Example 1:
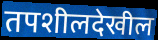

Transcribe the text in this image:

तपशीलदेखील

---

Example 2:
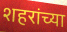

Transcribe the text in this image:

शहरांच्या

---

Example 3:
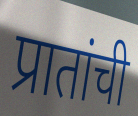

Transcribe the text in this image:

प्रातांची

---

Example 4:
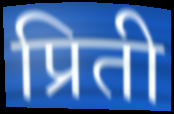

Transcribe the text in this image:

प्रिती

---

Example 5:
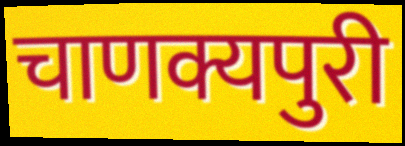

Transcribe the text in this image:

चाणक्यपुरी